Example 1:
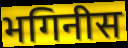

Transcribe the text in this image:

भगिनीस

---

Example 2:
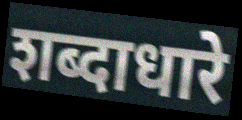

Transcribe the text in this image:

शब्दाधारे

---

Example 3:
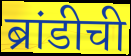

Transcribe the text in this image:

ब्रांडीची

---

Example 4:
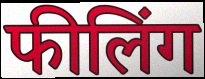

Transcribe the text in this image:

फीलिंग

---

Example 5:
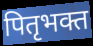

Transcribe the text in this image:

पितृभक्त